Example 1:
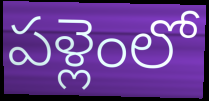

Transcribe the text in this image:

పళ్లెంలో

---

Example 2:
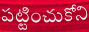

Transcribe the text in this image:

పట్టించుకోని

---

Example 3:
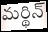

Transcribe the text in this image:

మర్థిన్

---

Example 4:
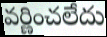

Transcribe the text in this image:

వర్ణించలేదు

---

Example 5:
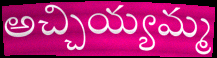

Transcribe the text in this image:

అచ్చియ్యమ్మ